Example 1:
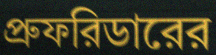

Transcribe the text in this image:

প্রুফরিডারের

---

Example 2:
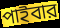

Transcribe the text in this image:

পাইবার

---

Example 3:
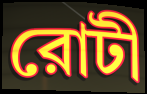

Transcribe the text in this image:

রোটী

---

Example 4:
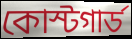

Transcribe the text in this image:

কোস্টগার্ড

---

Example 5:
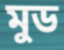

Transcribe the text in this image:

মুড